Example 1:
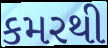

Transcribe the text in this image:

કમરથી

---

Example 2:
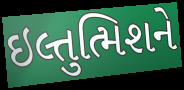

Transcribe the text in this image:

ઇલ્તુત્મિશને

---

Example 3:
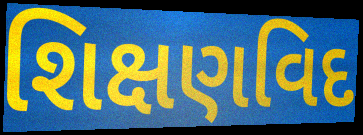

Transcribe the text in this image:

શિક્ષણવિદ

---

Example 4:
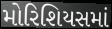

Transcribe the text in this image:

મોરિશિયસમાં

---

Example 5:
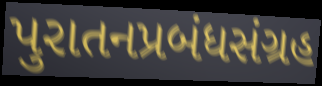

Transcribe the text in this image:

પુરાતનપ્રબંધસંગ્રહ